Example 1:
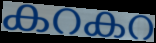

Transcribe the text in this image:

കറകറ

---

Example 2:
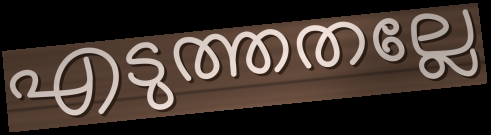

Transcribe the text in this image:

എടുത്തതല്ലേ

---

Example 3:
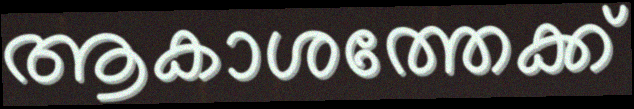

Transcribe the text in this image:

ആകാശത്തേക്ക്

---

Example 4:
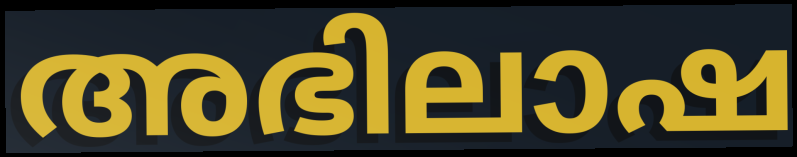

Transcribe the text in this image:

അഭിലാഷ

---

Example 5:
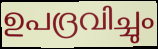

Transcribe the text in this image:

ഉപദ്രവിച്ചും